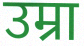
उम्रा